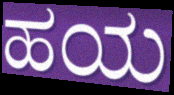
ಹಯ